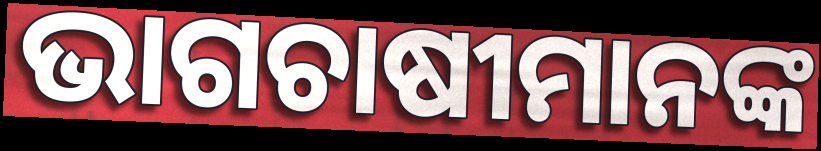
ଭାଗଚାଷୀମାନଙ୍କ